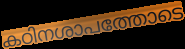
കഠിനശാപത്തോടെ